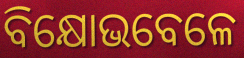
ବିକ୍ଷୋଭବେଳେ